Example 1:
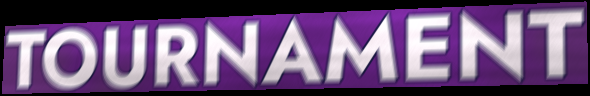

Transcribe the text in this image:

TOURNAMENT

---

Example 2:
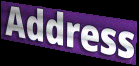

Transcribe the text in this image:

Address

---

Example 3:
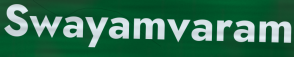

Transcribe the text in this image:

Swayamvaram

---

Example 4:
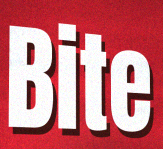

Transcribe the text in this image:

Bite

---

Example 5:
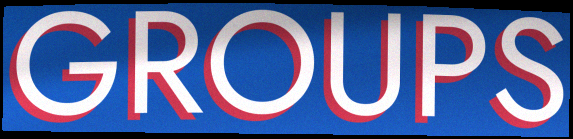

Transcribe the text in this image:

GROUPS